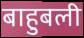
बाहुबली